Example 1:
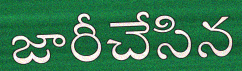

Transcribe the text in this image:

జారీచేసిన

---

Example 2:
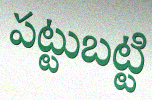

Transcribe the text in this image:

పట్టుబట్టి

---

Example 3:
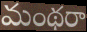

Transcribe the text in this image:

మంథరా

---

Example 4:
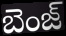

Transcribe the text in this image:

బెంజ్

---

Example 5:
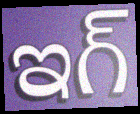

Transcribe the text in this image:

ఇగ్